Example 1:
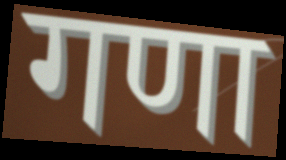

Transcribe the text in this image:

गणा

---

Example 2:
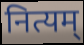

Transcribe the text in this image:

नित्यम्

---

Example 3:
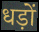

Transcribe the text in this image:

धड़ों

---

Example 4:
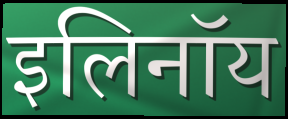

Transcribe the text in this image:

इलिनॉय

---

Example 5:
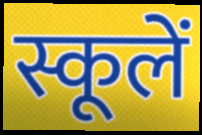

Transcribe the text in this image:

स्कूलें